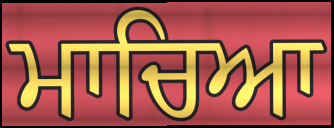
ਮਾਚਿਆ